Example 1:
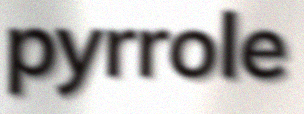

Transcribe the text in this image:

pyrrole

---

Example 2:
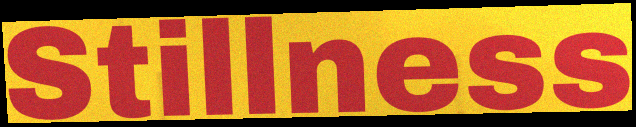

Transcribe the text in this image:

Stillness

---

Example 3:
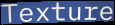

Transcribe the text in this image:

Texture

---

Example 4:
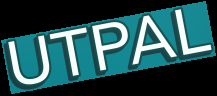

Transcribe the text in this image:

UTPAL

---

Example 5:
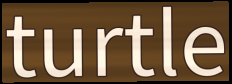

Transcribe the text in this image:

turtle